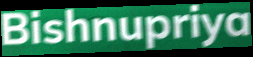
Bishnupriya